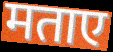
मताए